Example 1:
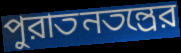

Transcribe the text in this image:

পুরাতনতন্ত্রের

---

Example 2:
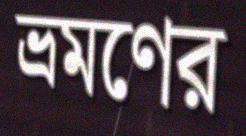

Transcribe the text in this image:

ভ্রমণের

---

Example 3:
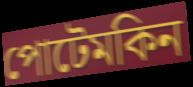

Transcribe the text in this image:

পোটেমকিন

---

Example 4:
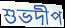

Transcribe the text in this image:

শুভদীপ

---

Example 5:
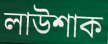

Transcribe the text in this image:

লাউশাক